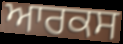
ਆਰਕਸ